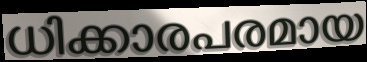
ധിക്കാരപരമായ